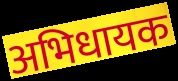
अभिधायक